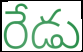
రేడు